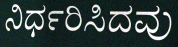
ನಿರ್ಧರಿಸಿದವು